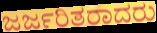
ಜರ್ಜರಿತರಾದರು